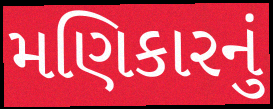
મણિકારનું